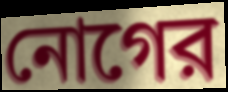
নোগের